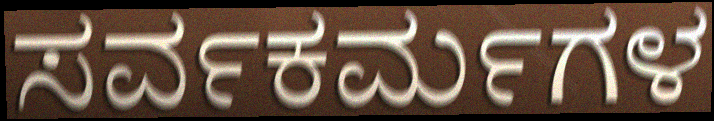
ಸರ್ವಕರ್ಮಗಳ